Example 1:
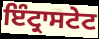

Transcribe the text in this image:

ਇੰਟ੍ਰਾਸਟੇਟ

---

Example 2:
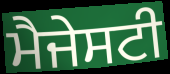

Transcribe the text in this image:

ਮੈਜੇਸਟੀ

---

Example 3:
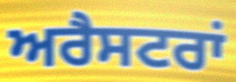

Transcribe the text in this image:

ਅਰੈਸਟਰਾਂ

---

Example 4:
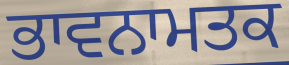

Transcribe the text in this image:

ਭਾਵਨਾਮਤਕ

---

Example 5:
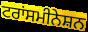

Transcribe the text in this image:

ਟਰਾਂਸਮੀਨੇਸ਼ਨ